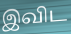
இவிட